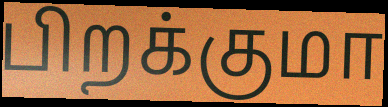
பிறக்குமா